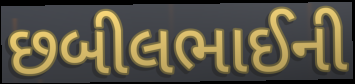
છબીલભાઈની